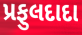
પ્રફુલદાદા